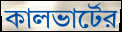
কালভার্টের